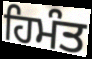
ਹਿਮੰਤ